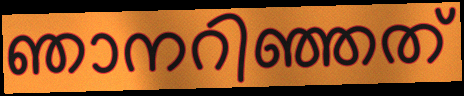
ഞാനറിഞ്ഞത്